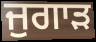
ਜੁਗਾੜ